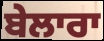
ਬੇਲਾਰਾ